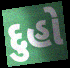
દુહો